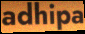
adhipa